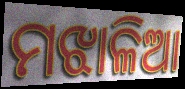
ମଝାଳିଆ